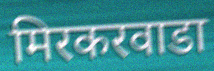
मिरकरवाडा